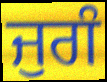
ਜੁਗੰ